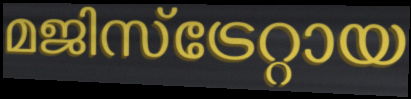
മജിസ്ട്രേറ്റായ